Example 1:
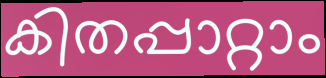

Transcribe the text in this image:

കിതപ്പാറ്റാം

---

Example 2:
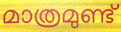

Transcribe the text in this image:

മാത്രമുണ്ട്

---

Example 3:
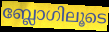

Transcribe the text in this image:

ബ്ലോഗിലൂടെ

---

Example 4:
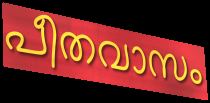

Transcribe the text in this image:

പീതവാസം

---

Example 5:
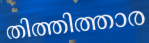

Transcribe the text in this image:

തിത്തിത്താര